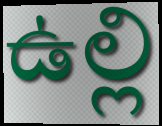
ఉల్లి